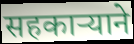
सहकाऱ्याने